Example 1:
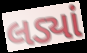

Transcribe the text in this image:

લડ્યાં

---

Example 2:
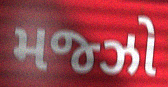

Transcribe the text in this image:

મજ્ઝો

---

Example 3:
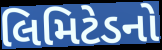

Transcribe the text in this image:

લિમિટેડનો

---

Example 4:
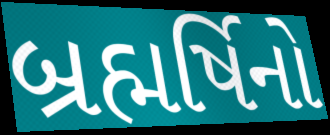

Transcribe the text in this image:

બ્રહ્મર્ષિનો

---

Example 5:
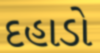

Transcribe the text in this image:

દહાડો